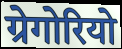
ग्रेगोरियो